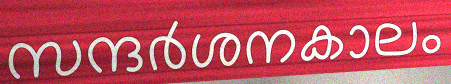
സന്ദർശനകാലം